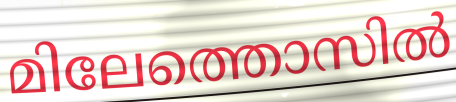
മിലേത്തൊസിൽ